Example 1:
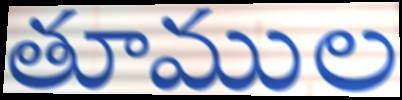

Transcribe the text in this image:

తూముల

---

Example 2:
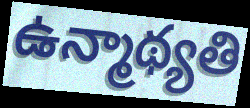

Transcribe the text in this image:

ఉన్మాథ్యతి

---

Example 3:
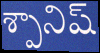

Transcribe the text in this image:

శ్పానిష్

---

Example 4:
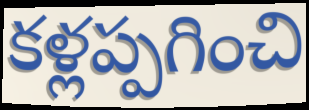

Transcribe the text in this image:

కళ్లప్పగించి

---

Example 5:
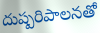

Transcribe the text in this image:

దుష్పరిపాలనతో